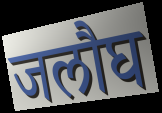
जलौघ